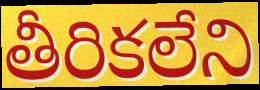
తీరికలేని